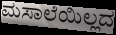
ಮಸಾಲೆಯಿಲ್ಲದ